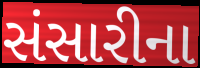
સંસારીના